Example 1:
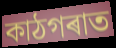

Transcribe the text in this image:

কাঠগৰাত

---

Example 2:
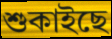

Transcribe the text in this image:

শুকাইছে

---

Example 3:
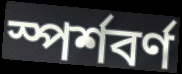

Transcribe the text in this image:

স্পৰ্শবৰ্ণ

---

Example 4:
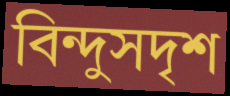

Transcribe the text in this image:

বিন্দুসদৃশ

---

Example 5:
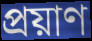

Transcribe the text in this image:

প্ৰয়াণ